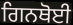
ਗਿਨਥੋਈ